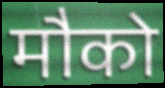
मौको